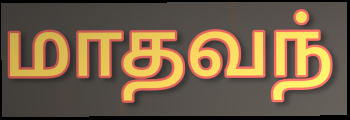
மாதவந்